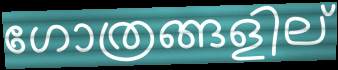
ഗോത്രങ്ങളില്